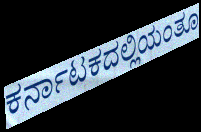
ಕರ್ನಾಟಕದಲ್ಲಿಯಂತೂ